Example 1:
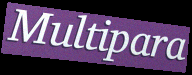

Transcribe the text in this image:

Multipara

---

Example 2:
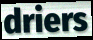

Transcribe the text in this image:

driers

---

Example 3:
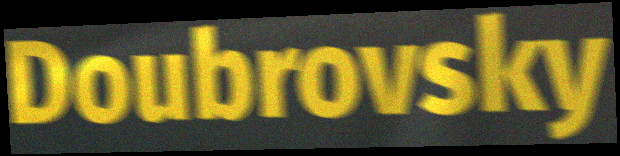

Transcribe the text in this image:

Doubrovsky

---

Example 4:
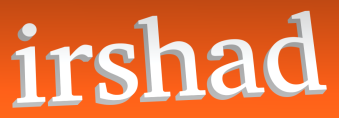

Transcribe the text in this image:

irshad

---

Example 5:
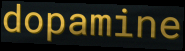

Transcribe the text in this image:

dopamine